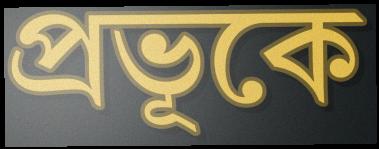
প্রভূকে